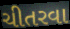
ચીતરવા